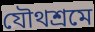
যৌথশ্রমে